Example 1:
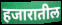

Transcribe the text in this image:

हजारातील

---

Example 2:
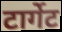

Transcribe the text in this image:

टार्गेट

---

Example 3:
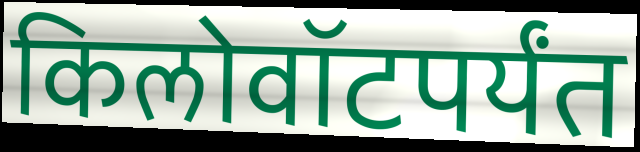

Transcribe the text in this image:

किलोवॉटपर्यंत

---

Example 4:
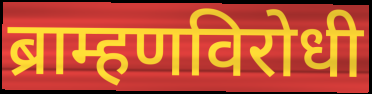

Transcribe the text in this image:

ब्राम्हणविरोधी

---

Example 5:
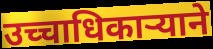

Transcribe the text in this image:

उच्चाधिकाऱ्याने